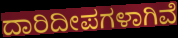
ದಾರಿದೀಪಗಳಾಗಿವೆ